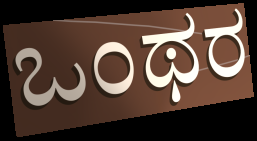
ಒಂಥರ